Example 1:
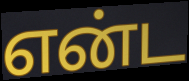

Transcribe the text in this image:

என்ட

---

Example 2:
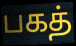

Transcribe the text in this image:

பகத்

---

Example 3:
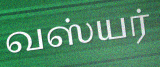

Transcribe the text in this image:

வஸ்யர்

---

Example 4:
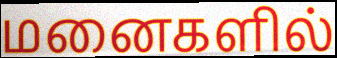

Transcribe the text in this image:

மனைகளில்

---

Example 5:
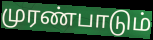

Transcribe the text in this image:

முரண்பாடும்